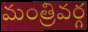
మంత్రివర్గ